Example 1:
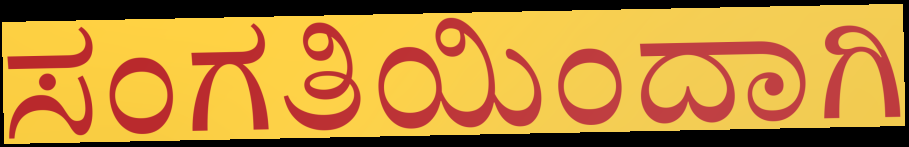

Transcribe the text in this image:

ಸಂಗತಿಯಿಂದಾಗಿ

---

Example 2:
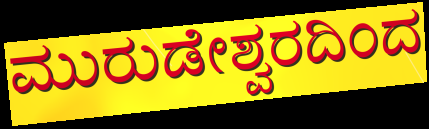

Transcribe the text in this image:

ಮುರುಡೇಶ್ವರದಿಂದ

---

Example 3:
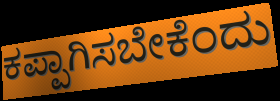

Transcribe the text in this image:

ಕಪ್ಪಾಗಿಸಬೇಕೆಂದು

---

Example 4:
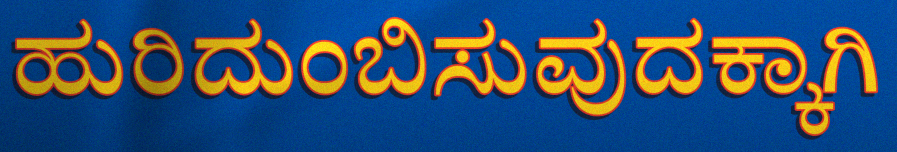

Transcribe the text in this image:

ಹುರಿದುಂಬಿಸುವುದಕ್ಕಾಗಿ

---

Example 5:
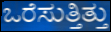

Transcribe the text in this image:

ಒರೆಸುತ್ತಿತ್ತು